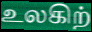
உலகிற்